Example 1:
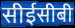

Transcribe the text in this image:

सीईसीबी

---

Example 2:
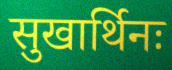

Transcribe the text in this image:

सुखार्थिनः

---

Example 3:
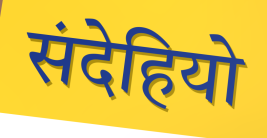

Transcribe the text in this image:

संदेहियो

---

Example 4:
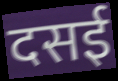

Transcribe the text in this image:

दसई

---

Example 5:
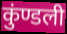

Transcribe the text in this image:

कुंण्डली